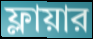
ফ্লায়ার